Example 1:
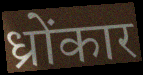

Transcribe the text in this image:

ध्रोंकार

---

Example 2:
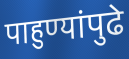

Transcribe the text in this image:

पाहुण्यांपुढे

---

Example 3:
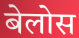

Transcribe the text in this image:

बेलोस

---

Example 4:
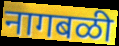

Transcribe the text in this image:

नागबळी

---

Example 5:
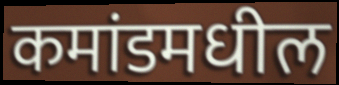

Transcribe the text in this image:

कमांडमधील